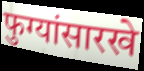
फुग्यांसारखे